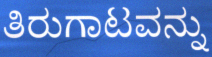
ತಿರುಗಾಟವನ್ನು